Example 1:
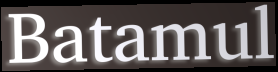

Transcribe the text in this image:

Batamul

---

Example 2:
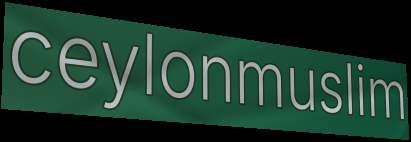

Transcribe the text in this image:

ceylonmuslim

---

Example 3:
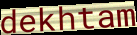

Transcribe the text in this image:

dekhtam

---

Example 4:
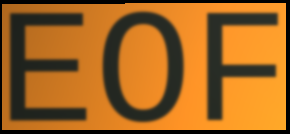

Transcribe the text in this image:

EOF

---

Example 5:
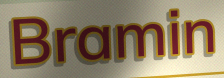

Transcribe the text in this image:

Bramin